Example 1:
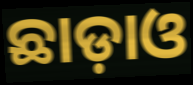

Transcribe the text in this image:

ଛାଡ଼ାଓ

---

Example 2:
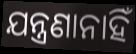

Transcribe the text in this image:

ଯନ୍ତ୍ରଣାନାହିଁ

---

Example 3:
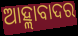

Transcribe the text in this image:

ଆହ୍ଲାବାଦର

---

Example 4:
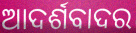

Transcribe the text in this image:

ଆଦର୍ଶବାଦର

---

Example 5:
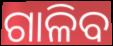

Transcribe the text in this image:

ଗାଳିବ